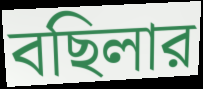
বছিলার